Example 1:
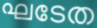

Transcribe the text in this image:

ഘടേത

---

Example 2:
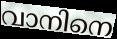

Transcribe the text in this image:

വാനിനെ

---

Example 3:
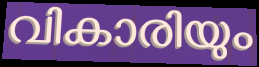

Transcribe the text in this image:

വികാരിയും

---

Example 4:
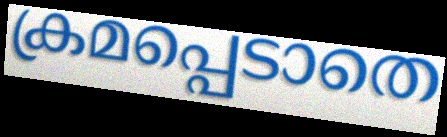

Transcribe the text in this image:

ക്രമപ്പെടാതെ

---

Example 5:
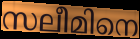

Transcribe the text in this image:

സലീമിനെ